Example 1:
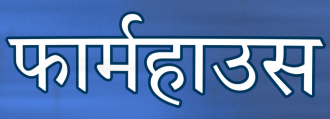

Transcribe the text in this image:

फार्महाउस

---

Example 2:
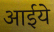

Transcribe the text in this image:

आईये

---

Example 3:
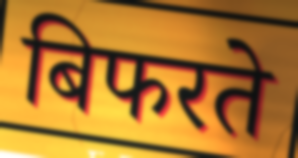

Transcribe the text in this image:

बिफरते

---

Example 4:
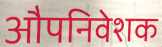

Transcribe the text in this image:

औपनिवेशक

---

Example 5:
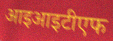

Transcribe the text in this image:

आइआइटीएफ